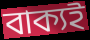
বাক্যই